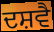
ਦਸ਼ਵੈ